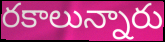
రకాలున్నారు